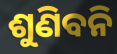
ଶୁଣିବନି